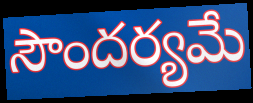
సౌందర్యమే